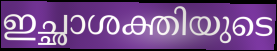
ഇച്ഛാശക്തിയുടെ